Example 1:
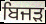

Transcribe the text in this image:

ਬਿਜੜ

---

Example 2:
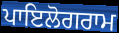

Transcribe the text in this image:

ਪਾਇਲੋਗਰਾਮ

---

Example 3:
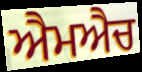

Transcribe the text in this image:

ਐਮਐਚ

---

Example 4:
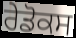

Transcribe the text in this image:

ਰੇਡੋਕਸ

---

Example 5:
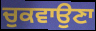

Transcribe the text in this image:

ਚੁਕਵਾਉਣਾ